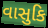
વાસુકિ